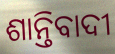
ଶାନ୍ତିବାଦୀ